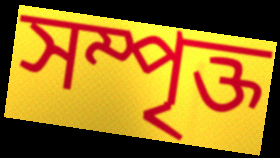
সম্পৃক্ত